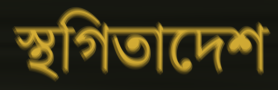
স্থগিতাদেশ